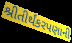
શ્રીતીર્થંકરપણાની